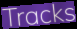
Tracks